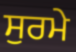
ਸੁਰਮੇ